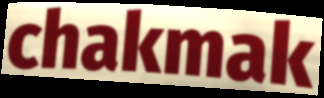
chakmak